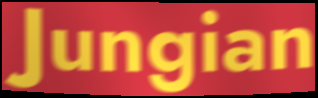
Jungian